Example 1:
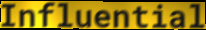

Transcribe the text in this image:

Influential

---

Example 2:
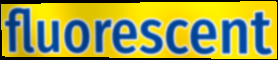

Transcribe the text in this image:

fluorescent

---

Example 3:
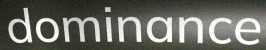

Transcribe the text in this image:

dominance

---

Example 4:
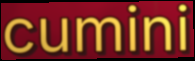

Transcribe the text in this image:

cumini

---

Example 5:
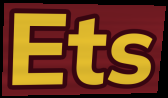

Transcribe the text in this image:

Ets